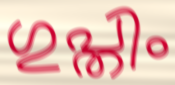
ഗുപ്തിം